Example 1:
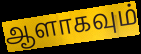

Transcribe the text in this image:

ஆளாகவும்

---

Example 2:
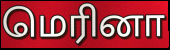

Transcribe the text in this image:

மெரினா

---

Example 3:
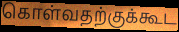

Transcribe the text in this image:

கொள்வதற்குக்கூட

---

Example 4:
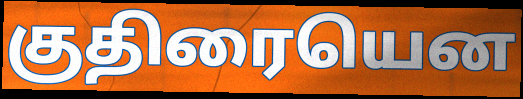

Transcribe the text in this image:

குதிரையென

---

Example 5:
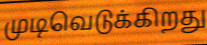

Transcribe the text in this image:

முடிவெடுக்கிறது